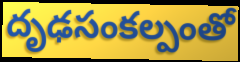
దృఢసంకల్పంతో